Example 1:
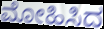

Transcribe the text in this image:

ಮೋಹಿಸಿದ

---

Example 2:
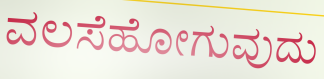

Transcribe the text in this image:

ವಲಸೆಹೋಗುವುದು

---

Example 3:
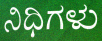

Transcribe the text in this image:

ನಿಧಿಗಳು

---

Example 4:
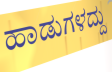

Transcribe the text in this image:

ಹಾಡುಗಳದ್ದು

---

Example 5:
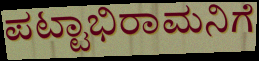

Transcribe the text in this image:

ಪಟ್ಟಾಭಿರಾಮನಿಗೆ